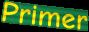
Primer